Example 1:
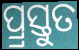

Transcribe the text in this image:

ପ୍ର୍ରସ୍ତୁତ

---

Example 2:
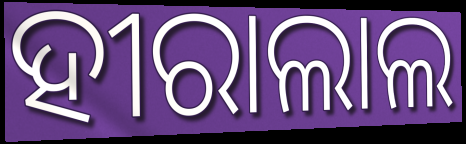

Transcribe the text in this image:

ହୀରାଲାଲ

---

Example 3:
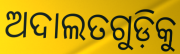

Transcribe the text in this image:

ଅଦାଲତଗୁଡ଼ିକୁ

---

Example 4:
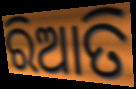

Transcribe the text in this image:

ରିଆତି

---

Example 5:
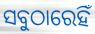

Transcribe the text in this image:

ସବୁଠାରେହିଁ